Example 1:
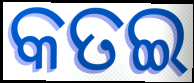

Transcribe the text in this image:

କତଇ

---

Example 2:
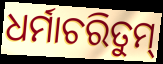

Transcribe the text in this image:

ଧର୍ମାଚରିତୁମ୍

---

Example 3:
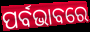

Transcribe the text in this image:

ପର୍ବଭାବରେ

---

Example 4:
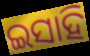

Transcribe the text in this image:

ଇସାହି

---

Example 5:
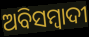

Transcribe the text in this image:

ଅବିସମ୍ବାଦୀ